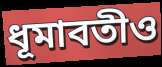
ধূমাবতীও